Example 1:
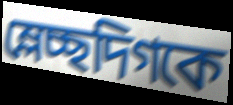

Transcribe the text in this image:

ম্লেচ্ছদিগকে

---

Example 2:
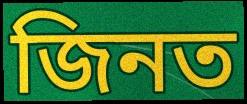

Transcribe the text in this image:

জিনত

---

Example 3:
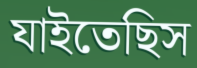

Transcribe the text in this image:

যাইতেছিস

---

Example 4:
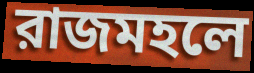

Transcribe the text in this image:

রাজমহলে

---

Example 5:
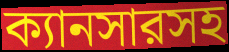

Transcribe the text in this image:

ক্যানসারসহ